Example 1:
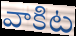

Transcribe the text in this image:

వాకిట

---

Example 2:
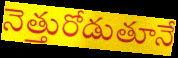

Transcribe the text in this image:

నెత్తురోడుతూనే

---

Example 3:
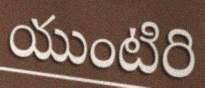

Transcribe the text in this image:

యుంటిరి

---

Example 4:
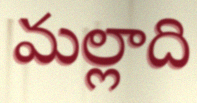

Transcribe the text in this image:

మల్లాది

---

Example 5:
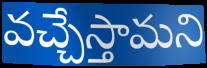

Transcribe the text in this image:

వచ్చేస్తామని